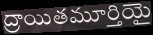
ద్రాయితమూర్తియై